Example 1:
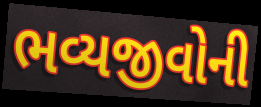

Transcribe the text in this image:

ભવ્યજીવોની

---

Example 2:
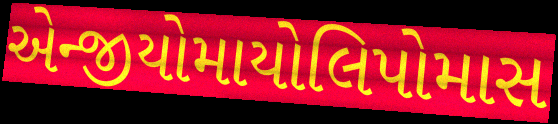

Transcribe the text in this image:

એન્જીયોમાયોલિપોમાસ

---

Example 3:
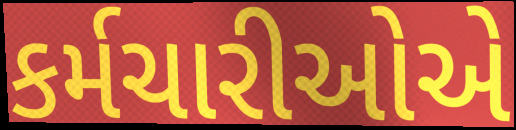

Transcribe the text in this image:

કર્મચારીઓએ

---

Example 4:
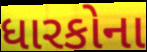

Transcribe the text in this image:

ધારકોના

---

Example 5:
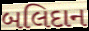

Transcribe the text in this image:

બલિદાન